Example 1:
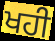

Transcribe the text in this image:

ਖਹੀ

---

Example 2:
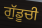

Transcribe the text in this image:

ਗੁੱਡੂਚੀ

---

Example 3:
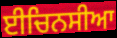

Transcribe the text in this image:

ਈਚਿਨਸੀਆ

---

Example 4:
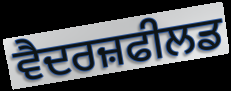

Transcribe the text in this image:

ਵੈਦਰਜ਼ਫੀਲਡ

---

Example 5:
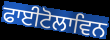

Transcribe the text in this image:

ਫਾਈਟੋਲਾਵਿਨ